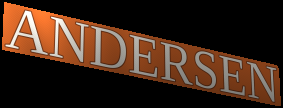
ANDERSEN